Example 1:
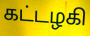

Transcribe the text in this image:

கட்டழகி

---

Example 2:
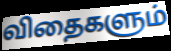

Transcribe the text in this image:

விதைகளும்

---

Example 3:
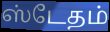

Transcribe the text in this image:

ஸ்டேதம்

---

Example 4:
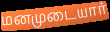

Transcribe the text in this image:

மனமுடையார்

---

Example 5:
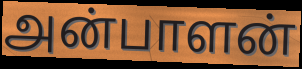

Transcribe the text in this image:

அன்பாளன்